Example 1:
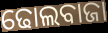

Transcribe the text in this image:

ଢୋଲବାଜା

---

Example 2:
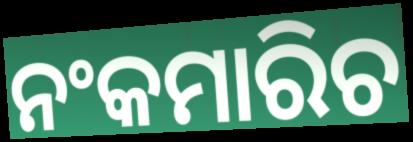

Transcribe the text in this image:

ନଂକମାରିଚ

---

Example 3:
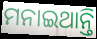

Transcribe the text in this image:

ମନାଇଥାନ୍ତି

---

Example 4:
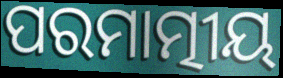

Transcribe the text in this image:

ପରମାତ୍ମୀୟ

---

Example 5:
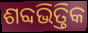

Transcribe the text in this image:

ଶବ୍ଦଭିତ୍ତିକ